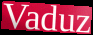
Vaduz